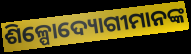
ଶିଳ୍ପୋଦ୍ୟୋଗୀମାନଙ୍କ